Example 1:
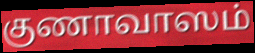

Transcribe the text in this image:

குணாவாஸம்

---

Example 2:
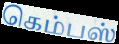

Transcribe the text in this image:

கெம்பஸ்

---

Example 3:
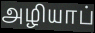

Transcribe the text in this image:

அழியாப்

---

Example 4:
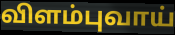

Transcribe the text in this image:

விளம்புவாய்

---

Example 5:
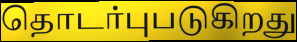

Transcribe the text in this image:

தொடர்புபடுகிறது